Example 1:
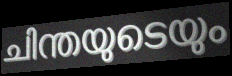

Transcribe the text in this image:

ചിന്തയുടെയും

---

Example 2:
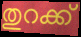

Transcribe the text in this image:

തുറക്ക്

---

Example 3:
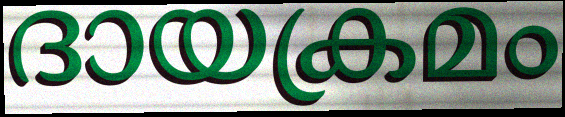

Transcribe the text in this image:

ദായക്രമം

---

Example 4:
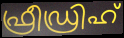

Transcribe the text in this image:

ഫ്രീഡ്രിഹ്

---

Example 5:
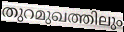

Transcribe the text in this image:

തുറമുഖത്തിലും